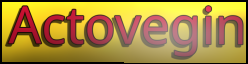
Actovegin